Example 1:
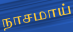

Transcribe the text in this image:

நாசமாய்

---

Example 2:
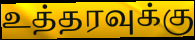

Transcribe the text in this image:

உத்தரவுக்கு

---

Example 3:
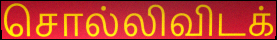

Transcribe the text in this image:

சொல்லிவிடக்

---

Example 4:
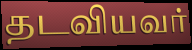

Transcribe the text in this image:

தடவியவர்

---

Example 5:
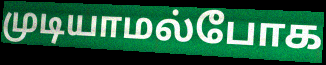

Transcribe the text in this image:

முடியாமல்போக